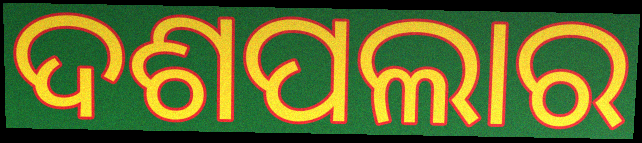
ଦଶପଲାର